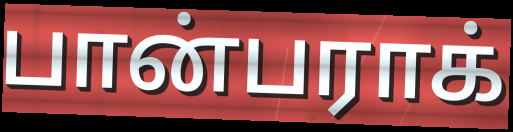
பான்பராக்